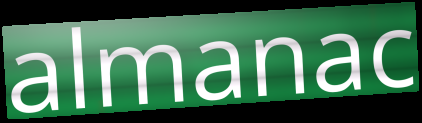
almanac